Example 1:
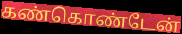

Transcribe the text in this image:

கண்கொண்டேன்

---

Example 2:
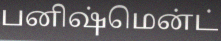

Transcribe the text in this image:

பனிஷ்மென்ட்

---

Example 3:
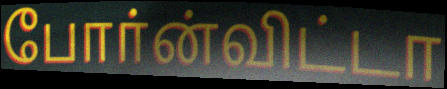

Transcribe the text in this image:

போர்ன்விட்டா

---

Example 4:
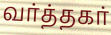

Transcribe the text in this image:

வர்த்தகர்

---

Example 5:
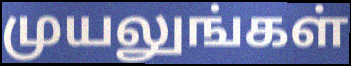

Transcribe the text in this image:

முயலுங்கள்